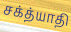
சக்த்யாதி